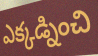
ఎక్కడ్నించి